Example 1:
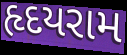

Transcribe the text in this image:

હૃદયરામ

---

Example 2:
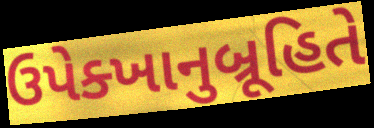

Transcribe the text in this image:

ઉપેક્ખાનુબ્રૂહિતે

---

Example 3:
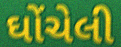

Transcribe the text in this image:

ઘોંચેલી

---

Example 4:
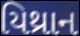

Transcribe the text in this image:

યિથ્રાન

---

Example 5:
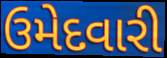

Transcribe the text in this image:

ઉમેદવારી